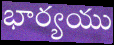
భార్యయు